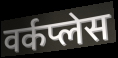
वर्कप्लेस